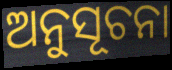
ଅନୁସୂଚନା